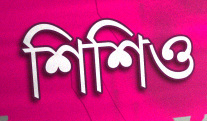
শিশিও